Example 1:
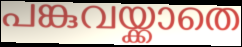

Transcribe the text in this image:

പങ്കുവയ്ക്കാതെ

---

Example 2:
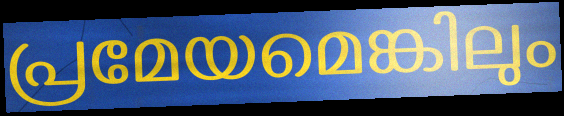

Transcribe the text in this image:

പ്രമേയമെങ്കിലും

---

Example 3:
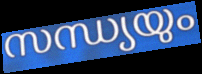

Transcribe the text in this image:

സന്ധ്യയും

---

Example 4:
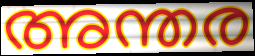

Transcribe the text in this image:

അന്തര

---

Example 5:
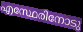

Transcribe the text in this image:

എസ്ഥേരിനോടു